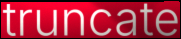
truncate